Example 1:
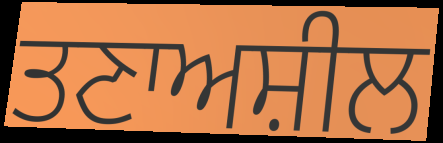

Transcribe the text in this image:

ਤਣਾਅਸ਼ੀਲ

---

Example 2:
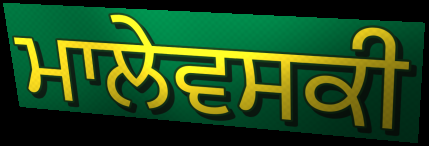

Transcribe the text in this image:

ਮਾਲੇਵਸਕੀ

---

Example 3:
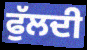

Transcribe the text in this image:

ਫੁੱਲਦੀ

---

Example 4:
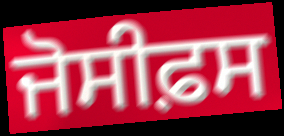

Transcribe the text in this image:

ਜੋਸੀਫ਼ਸ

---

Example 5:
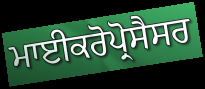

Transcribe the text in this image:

ਮਾਈਕਰੋਪ੍ਰੋਸੈਸਰ